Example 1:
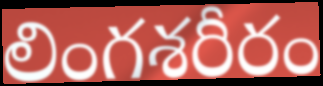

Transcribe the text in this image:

లింగశరీరం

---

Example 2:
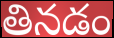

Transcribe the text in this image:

తినడం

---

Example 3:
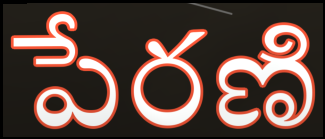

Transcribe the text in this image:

పేరణి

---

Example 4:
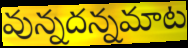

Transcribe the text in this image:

వున్నదన్నమాట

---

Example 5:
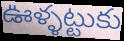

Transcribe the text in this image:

ఊళ్ళట్టుకు